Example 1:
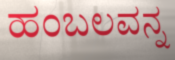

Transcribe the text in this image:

ಹಂಬಲವನ್ನ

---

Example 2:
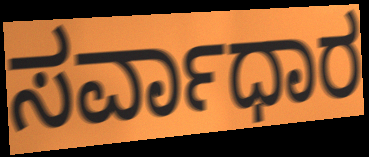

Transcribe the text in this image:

ಸರ್ವಾಧಾರ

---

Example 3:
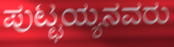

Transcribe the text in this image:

ಪುಟ್ಟಯ್ಯನವರು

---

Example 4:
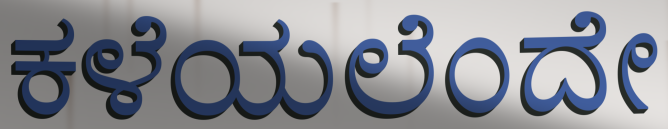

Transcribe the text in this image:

ಕಳೆಯಲೆಂದೇ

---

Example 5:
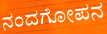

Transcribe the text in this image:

ನಂದಗೋಪನ